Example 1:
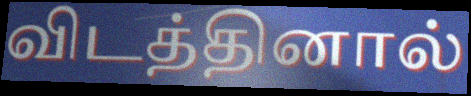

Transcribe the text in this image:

விடத்தினால்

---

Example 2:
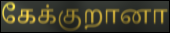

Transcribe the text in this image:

கேக்குறானா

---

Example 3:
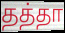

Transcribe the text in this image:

தத்தா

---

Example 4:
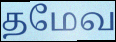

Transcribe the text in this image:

தமேவ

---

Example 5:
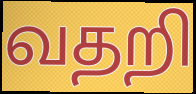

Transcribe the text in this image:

வதறி